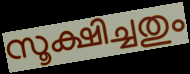
സൂക്ഷിച്ചതും